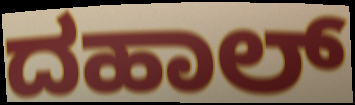
ದಹಾಲ್